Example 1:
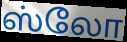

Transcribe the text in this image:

ஸ்லோ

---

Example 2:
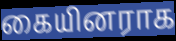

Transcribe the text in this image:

கையினராக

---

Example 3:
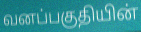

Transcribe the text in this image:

வனப்பகுதியின்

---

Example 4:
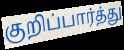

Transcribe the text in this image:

குறிப்பார்த்து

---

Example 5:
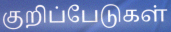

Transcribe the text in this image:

குறிப்பேடுகள்